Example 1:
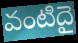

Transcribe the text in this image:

వంటిదై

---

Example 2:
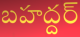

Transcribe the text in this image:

బహద్దర్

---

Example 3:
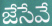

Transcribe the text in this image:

జేసేవే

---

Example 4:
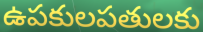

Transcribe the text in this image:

ఉపకులపతులకు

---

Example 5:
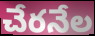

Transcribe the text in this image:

చేరనేల